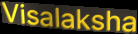
Visalaksha